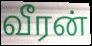
வீரன்